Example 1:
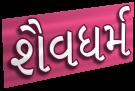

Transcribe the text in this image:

શૈવધર્મ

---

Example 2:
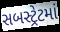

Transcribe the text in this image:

સબસ્ટ્રેટમાં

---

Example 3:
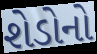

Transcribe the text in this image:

શેડોનો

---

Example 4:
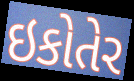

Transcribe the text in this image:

ઇકોતેર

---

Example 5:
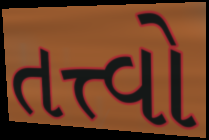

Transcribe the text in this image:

તત્ત્વો